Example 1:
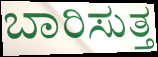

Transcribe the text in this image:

ಬಾರಿಸುತ್ತ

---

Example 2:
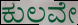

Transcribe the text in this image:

ಕುಲವೇ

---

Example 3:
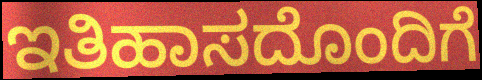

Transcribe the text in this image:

ಇತಿಹಾಸದೊಂದಿಗೆ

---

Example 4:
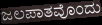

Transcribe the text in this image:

ಜಲಪಾತವೊಂದು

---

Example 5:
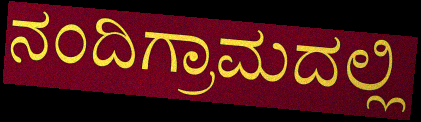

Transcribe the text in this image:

ನಂದಿಗ್ರಾಮದಲ್ಲಿ